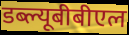
डब्ल्यूबीबीएल